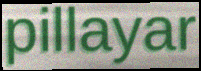
pillayar